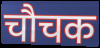
चौचक